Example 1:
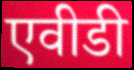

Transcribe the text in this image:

एवीडी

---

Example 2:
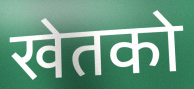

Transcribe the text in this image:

खेतको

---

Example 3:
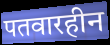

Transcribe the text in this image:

पतवारहीन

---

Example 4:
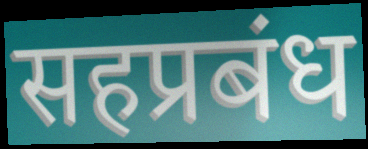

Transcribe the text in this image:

सहप्रबंध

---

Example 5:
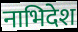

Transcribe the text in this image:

नाभिदेश